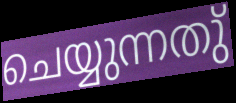
ചെയ്യുന്നതു്